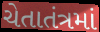
ચેતાતંત્રમાં